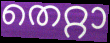
തെറ്റാ